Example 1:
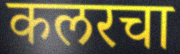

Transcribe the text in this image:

कलरचा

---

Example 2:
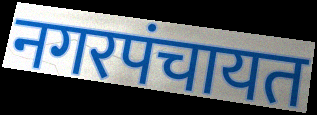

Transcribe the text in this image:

नगरपंचायत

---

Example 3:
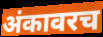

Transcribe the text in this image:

अंकावरच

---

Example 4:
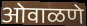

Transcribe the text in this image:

ओवाळणे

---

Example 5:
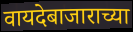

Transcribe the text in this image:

वायदेबाजाराच्या